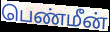
பெண்மீன்